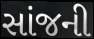
સાંજની